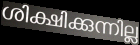
ശിക്ഷിക്കുന്നില്ല